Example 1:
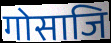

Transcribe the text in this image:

गोसाजि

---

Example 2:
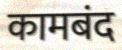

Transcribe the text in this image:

कामबंद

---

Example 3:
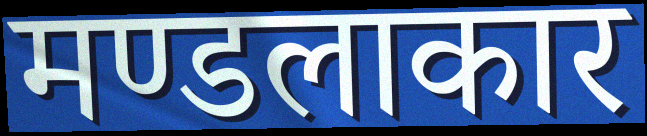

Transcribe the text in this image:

मण्डलाकार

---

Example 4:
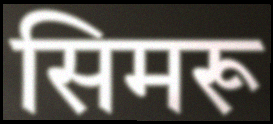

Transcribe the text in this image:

सिमरू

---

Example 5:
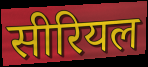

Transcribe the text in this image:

सीरियल